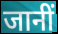
जानीं